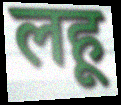
लहू